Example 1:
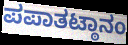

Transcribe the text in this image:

ಪಪಾತಟ್ಠಾನಂ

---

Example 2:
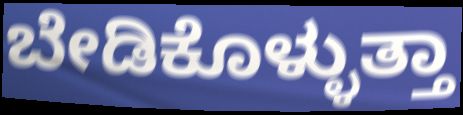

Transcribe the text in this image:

ಬೇಡಿಕೊಳ್ಳುತ್ತಾ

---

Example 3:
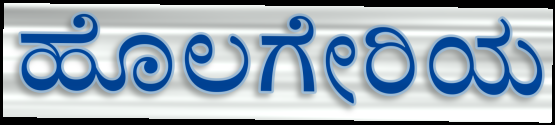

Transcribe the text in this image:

ಹೊಲಗೇರಿಯ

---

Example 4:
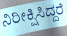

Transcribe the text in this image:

ನಿರೀಕ್ಷಿಸಿದ್ದರೆ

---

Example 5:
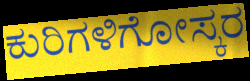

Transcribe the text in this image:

ಕುರಿಗಳಿಗೋಸ್ಕರ